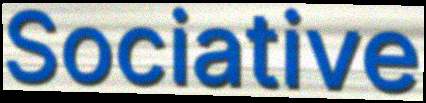
Sociative